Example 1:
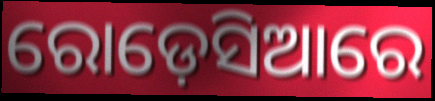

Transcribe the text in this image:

ରୋଡ଼େସିଆରେ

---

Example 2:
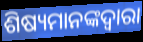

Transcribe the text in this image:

ଶିଷ୍ୟମାନଙ୍କଦ୍ୱାରା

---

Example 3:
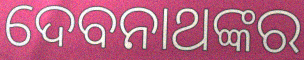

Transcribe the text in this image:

ଦେବନାଥଙ୍କର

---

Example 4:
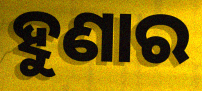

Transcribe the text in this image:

ହୁଣାର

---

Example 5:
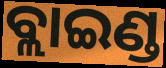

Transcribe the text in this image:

ବ୍ଲାଇଣ୍ଡ